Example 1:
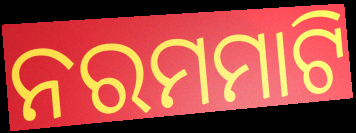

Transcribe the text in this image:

ନରମମାଟି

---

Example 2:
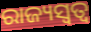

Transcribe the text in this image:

ରାଜ୍ୟସ୍ଵତ୍ଵ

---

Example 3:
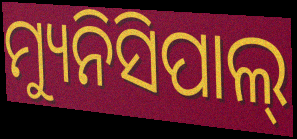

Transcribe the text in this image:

ମ୍ୟୁନିସିପାଲ୍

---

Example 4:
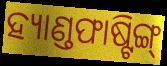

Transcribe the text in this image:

ହ୍ୟାଣ୍ଡଫାଷ୍ଟିଙ୍ଗ୍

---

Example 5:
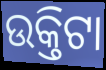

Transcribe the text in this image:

ଉକ୍ତିଟା